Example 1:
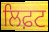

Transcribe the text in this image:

ਲਿਫ਼ਟ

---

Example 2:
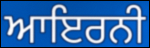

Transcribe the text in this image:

ਆਇਰਨੀ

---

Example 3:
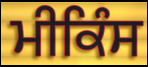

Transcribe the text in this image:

ਮੀਕਿੰਸ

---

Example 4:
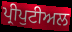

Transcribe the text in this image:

ਪ੍ਰੀਪੁਟੀਅਲ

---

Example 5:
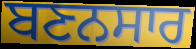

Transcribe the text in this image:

ਬਣਨਸਾਰ